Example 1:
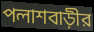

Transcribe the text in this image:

পলাশবাড়ীর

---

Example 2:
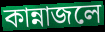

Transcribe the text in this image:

কান্নাজলে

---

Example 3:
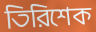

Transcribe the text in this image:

তিরিশেক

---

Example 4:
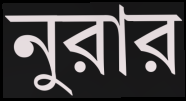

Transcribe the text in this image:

নুরার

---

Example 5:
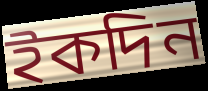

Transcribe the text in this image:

ইকদিন